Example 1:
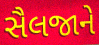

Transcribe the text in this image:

સૈલજાને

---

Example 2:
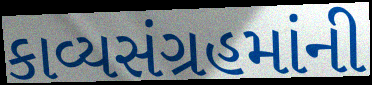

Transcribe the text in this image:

કાવ્યસંગ્રહમાંની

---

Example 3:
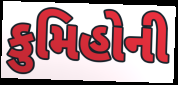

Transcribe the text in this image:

કુમિહોની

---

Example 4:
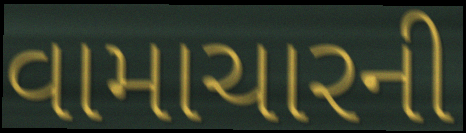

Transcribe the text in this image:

વામાચારની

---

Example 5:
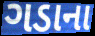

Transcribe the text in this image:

ગડાના